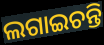
ଲଗାଇଚନ୍ତି